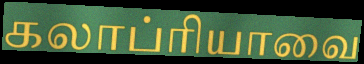
கலாப்ரியாவை